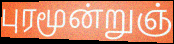
புரமூன்றுஞ்